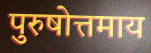
पुरुषोत्तमाय